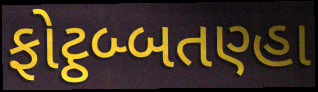
ફોટ્ઠબ્બતણ્હા